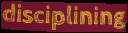
disciplining